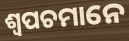
ଶ୍ୱପଚମାନେ